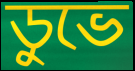
ডুভে